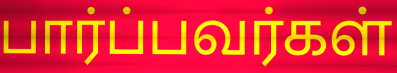
பார்ப்பவர்கள்